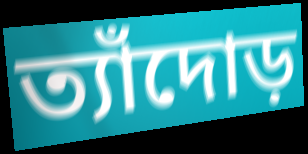
ত্যাঁদোড়